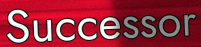
Successor